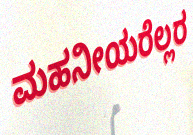
ಮಹನೀಯರೆಲ್ಲರ